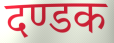
दण्डक